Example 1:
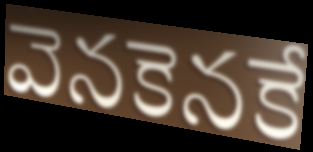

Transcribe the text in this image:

వెనకెనకే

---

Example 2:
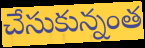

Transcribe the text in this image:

చేసుకున్నంత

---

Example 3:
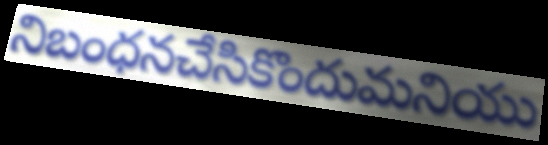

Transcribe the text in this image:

నిబంధనచేసికొందుమనియు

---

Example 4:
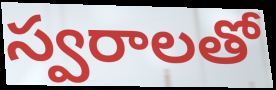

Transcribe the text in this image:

స్వరాలతో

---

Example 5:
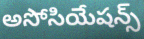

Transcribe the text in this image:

అసోసియేషన్స్